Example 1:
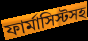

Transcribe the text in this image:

ফার্মাসিস্টসহ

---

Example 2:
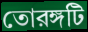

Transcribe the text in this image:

তোরঙ্গটি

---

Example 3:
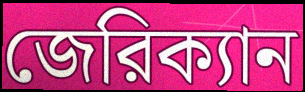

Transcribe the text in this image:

জেরিক্যান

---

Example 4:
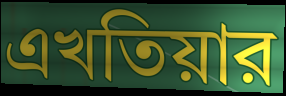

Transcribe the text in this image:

এখতিয়ার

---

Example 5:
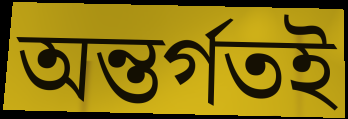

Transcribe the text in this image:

অন্তর্গতই